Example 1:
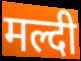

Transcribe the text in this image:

मल्दी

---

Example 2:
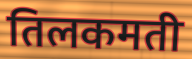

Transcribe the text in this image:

तिलकमती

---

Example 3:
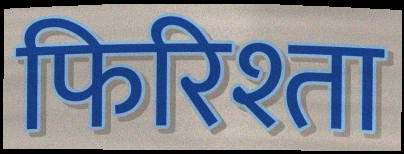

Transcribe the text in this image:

फिरिश्ता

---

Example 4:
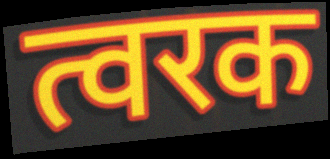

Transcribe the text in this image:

त्वरक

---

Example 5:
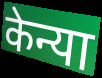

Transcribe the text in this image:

केन्या